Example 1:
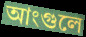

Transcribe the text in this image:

আংগুলে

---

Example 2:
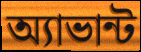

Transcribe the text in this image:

অ্যাভান্ট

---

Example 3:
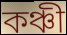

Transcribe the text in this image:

কঞ্চী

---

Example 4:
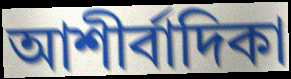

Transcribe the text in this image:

আশীর্বাদিকা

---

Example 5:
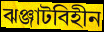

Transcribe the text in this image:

ঝঞ্জাটবিহীন